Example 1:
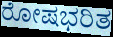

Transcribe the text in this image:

ರೋಷಭರಿತ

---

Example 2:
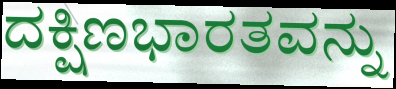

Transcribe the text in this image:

ದಕ್ಷಿಣಭಾರತವನ್ನು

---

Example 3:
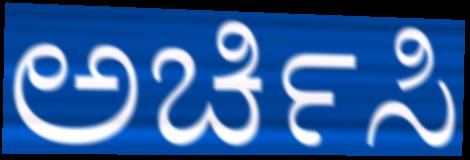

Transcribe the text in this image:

ಅರ್ಚಿಸಿ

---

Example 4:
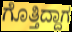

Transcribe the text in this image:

ಗೊತ್ತಿದ್ದಾಗ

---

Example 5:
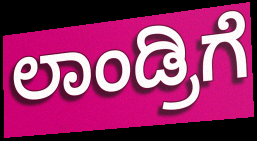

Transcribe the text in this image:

ಲಾಂಡ್ರಿಗೆ